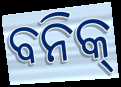
ବନିକ୍